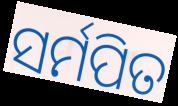
ସର୍ମପିତ